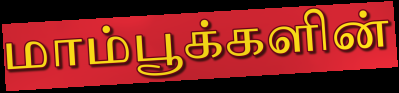
மாம்பூக்களின்